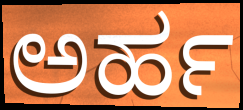
ಅರ್ಹ